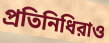
প্রতিনিধিরাও